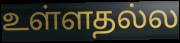
உள்ளதல்ல